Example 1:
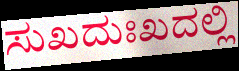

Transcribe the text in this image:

ಸುಖದುಃಖದಲ್ಲಿ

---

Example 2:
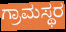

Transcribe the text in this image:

ಗ್ರಾಮಸ್ಥರ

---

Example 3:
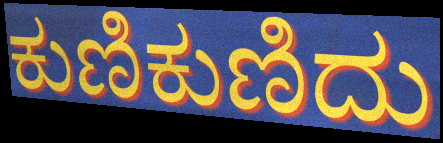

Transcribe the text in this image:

ಕುಣಿಕುಣಿದು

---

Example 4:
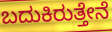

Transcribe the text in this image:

ಬದುಕಿರುತ್ತೇನೆ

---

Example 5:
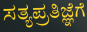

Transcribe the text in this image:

ಸತ್ಯಪ್ರತಿಜ್ಞೆಗೆ